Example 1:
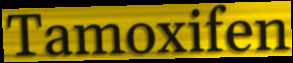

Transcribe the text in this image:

Tamoxifen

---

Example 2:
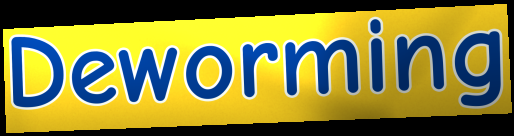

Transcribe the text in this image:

Deworming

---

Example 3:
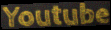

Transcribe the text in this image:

Youtube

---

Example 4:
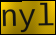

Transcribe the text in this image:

nyl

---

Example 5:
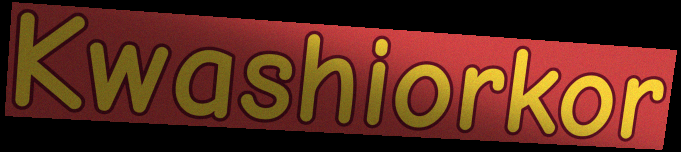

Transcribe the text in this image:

Kwashiorkor